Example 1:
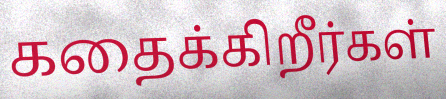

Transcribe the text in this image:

கதைக்கிறீர்கள்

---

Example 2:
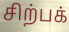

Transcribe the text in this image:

சிற்பக்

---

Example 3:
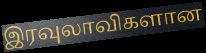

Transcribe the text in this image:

இரவுலாவிகளான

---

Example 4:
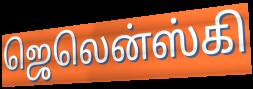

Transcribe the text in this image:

ஜெலென்ஸ்கி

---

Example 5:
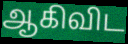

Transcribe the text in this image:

ஆகிவிட